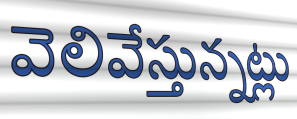
వెలివేస్తున్నట్లు